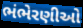
ભંભેરણીઓ